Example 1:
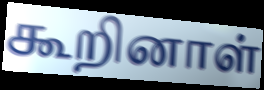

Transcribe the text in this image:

கூறினாள்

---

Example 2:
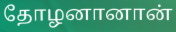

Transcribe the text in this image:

தோழனானான்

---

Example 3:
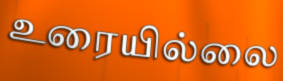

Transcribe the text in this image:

உரையில்லை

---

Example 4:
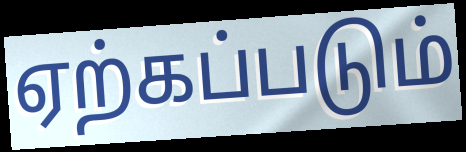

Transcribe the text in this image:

ஏற்கப்படும்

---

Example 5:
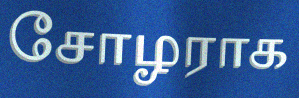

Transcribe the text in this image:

சோழராக